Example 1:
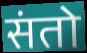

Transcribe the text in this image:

संतो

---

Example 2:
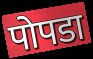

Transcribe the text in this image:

पोपडा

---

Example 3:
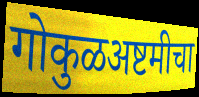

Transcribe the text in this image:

गोकुळअष्टमीचा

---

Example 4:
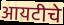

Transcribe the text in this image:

आयटीचे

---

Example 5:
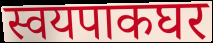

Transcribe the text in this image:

स्वयपाकघर